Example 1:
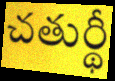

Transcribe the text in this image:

చతుర్థీ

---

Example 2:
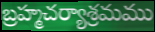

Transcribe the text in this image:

బ్రహ్మచర్యాశ్రమము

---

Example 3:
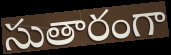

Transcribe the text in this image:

సుతారంగా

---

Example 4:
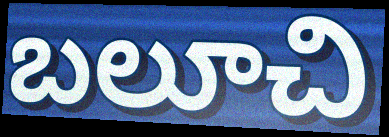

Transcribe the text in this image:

బలూచి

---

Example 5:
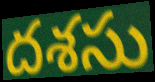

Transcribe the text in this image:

దశసు